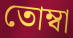
তোম্বা